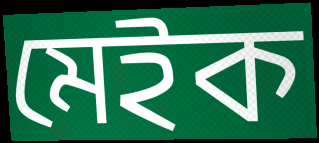
মেইক